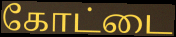
கோட்டை